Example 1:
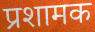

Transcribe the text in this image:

प्रशामक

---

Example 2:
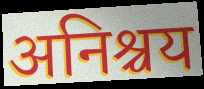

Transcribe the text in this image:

अनिश्चय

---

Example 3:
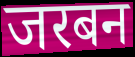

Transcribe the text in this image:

जरबन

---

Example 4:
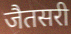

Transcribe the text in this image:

जैतसरी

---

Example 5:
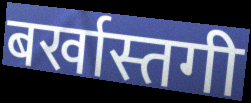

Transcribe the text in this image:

बर्खास्तगी